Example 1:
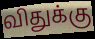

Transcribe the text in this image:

விதுக்கு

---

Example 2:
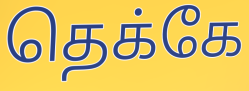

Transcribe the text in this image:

தெக்கே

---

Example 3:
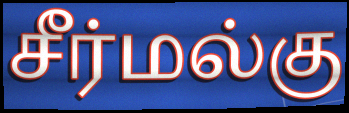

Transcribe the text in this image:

சீர்மல்கு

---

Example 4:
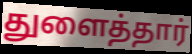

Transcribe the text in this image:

துளைத்தார்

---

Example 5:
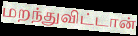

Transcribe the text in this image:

மறந்துவிட்டான்